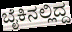
ಬೈಕಿನಲ್ಲಿದ್ದ